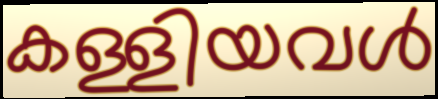
കള്ളിയവൾ